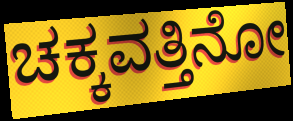
ಚಕ್ಕವತ್ತಿನೋ